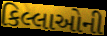
કિલ્લાઓની